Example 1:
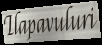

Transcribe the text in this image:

Ilapavuluri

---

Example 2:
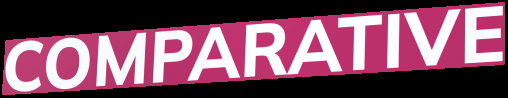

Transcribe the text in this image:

COMPARATIVE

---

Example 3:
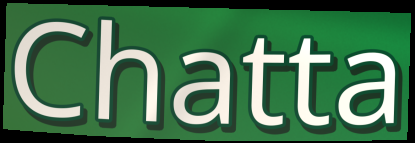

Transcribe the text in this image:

Chatta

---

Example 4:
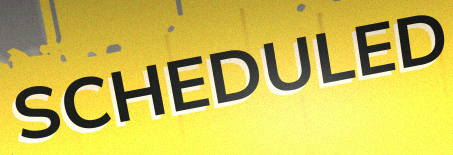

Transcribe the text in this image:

SCHEDULED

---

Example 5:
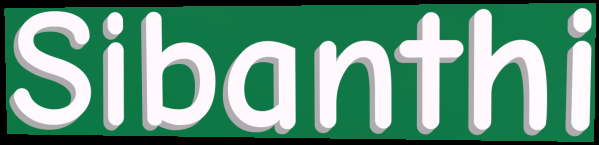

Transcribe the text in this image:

Sibanthi